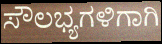
ಸೌಲಭ್ಯಗಳಿಗಾಗಿ